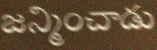
జన్మించాడు